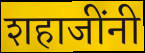
शहाजींनी